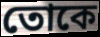
তোকে